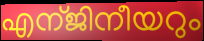
എന്ജിനീയറും